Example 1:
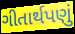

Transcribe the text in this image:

ગીતાર્થપણું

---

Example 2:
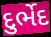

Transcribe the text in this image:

દુર્ભેદ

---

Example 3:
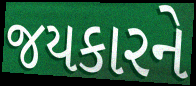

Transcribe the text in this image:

જયકારને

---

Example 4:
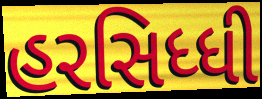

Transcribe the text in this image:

હરસિધ્ધી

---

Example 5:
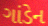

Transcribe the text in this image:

ગાંડેન